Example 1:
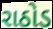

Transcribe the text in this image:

રાઠોડ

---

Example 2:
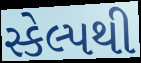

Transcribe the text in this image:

સ્કેલ્પથી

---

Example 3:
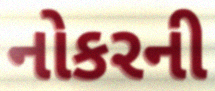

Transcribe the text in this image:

નોકરની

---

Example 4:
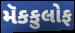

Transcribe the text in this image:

મૅકકુલોફ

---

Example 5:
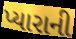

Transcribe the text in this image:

પ્યારાની